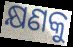
କ୍ଷଣକୁ